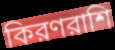
কিরণরাশি